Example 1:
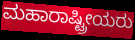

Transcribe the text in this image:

ಮಹಾರಾಷ್ಟ್ರೀಯರು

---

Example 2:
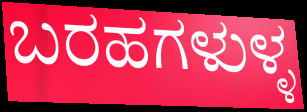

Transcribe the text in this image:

ಬರಹಗಳುಳ್ಳ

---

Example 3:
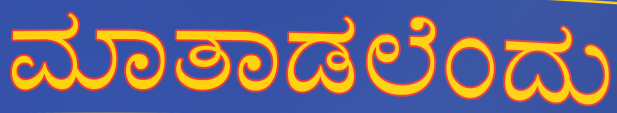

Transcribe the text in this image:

ಮಾತಾಡಲೆಂದು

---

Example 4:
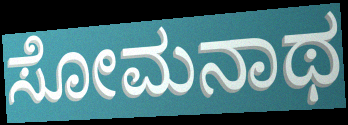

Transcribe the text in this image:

ಸೋಮನಾಥ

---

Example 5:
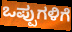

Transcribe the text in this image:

ಒಪ್ಪುಗಳಿಗೆ